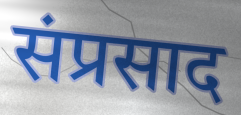
संप्रसाद